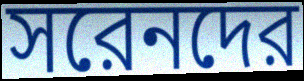
সরেনদের